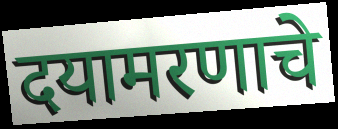
दयामरणाचे